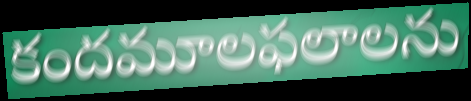
కందమూలఫలాలను